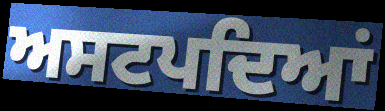
ਅਸਟਪਦਿਆਂ